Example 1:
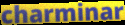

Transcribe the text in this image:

charminar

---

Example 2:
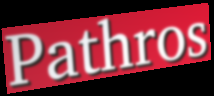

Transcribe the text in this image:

Pathros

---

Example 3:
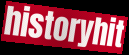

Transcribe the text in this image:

historyhit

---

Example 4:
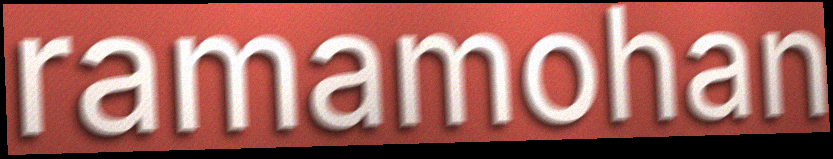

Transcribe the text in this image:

ramamohan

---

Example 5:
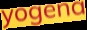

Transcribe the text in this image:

yogena